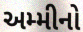
અમ્મીનો